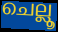
ചെല്ലൂ